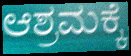
ಆಶ್ರಮಕ್ಕೆ